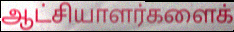
ஆட்சியாளர்களைக்